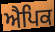
ਐਪਿਕ